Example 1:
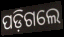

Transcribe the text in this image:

ପଡ଼ିଗଲେ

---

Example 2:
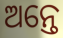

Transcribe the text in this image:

ଅନ୍ତେ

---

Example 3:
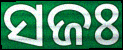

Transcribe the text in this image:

ସଜଃ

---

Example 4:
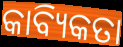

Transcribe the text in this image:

କାବ୍ୟିକତା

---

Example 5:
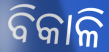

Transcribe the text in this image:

ବିକାଳି